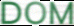
DOM